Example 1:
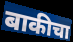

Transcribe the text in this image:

बाकीचा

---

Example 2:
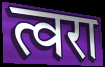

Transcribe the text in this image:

त्वरा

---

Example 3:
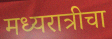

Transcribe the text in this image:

मध्यरात्रीचा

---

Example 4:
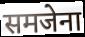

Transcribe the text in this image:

समजेना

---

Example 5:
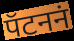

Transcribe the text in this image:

पॅटननं